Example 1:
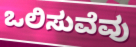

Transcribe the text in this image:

ಒಲಿಸುವೆವು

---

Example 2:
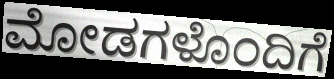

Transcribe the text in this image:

ಮೋಡಗಳೊಂದಿಗೆ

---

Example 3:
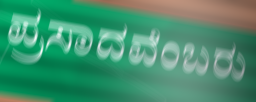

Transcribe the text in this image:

ಪ್ರಸಾದವೆಂಬರು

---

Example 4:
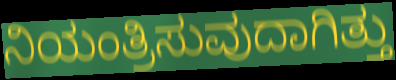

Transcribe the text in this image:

ನಿಯಂತ್ರಿಸುವುದಾಗಿತ್ತು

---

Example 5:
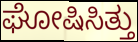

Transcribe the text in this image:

ಘೋಷಿಸಿತ್ತು